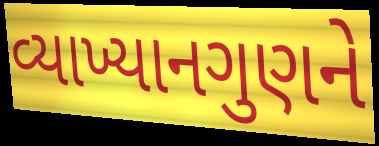
વ્યાખ્યાનગુણને